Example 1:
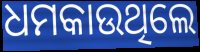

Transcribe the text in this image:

ଧମକାଉଥିଲେ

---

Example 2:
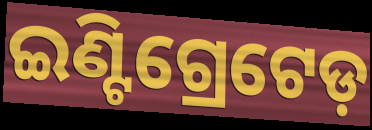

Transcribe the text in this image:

ଇଣ୍ଟିଗ୍ରେଟେଡ଼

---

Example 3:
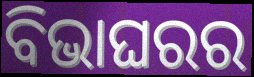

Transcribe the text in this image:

ବିଭାଘରର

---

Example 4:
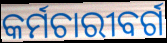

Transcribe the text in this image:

କର୍ମଚାରୀବର୍ଗ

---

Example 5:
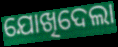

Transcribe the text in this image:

ଯୋଖିଦେଲା